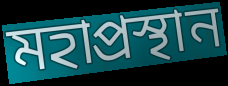
মহাপ্রস্থান